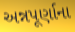
અન્નપૂર્ણાના